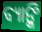
ବ୍ୟାଙ୍କି